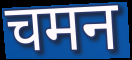
चमन